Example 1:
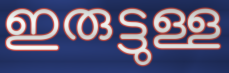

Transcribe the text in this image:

ഇരുട്ടുള്ള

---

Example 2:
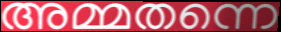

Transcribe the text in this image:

അമ്മതന്നെ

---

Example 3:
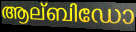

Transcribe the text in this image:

ആല്ബിഡോ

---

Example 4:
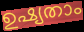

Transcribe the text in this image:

ഉഷ്യതാം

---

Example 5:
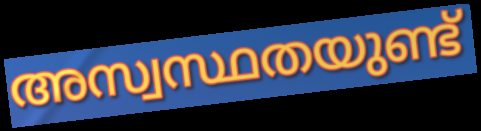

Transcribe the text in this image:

അസ്വസ്ഥതയുണ്ട്